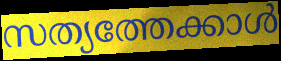
സത്യത്തേക്കാൾ